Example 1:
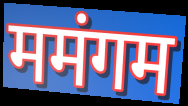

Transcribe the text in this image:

ममंगम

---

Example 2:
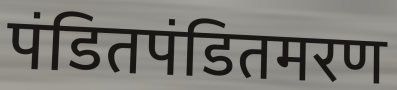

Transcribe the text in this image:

पंडितपंडितमरण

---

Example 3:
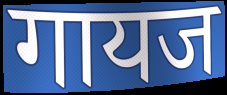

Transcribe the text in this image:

गायज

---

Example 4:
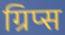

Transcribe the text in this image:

ग्रिप्स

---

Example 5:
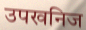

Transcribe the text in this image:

उपखनिज